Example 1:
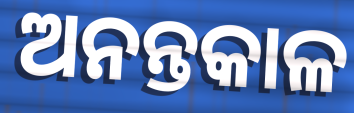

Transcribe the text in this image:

ଅନନ୍ତକାଳ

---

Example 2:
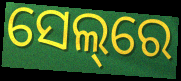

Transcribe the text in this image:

ସେଲ୍‌ରେ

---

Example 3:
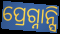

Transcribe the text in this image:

ପ୍ରେଗ୍ନାନ୍ସି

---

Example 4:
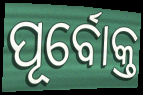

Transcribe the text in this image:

ପୂର୍ବୋକ୍ତ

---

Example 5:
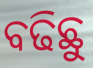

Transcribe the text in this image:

ବଢିଛୁ